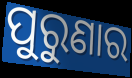
ପୁରୁଣାର